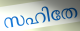
സഹിതേ